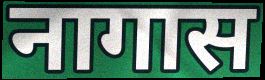
नागास